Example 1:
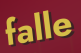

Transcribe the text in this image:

falle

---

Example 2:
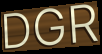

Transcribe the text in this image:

DGR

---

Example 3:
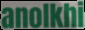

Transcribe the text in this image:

anolkhi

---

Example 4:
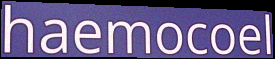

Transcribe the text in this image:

haemocoel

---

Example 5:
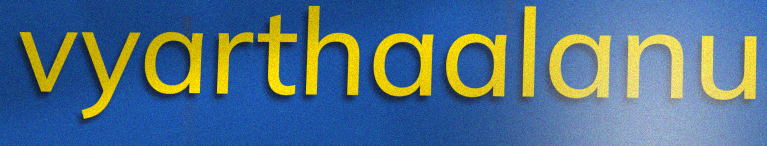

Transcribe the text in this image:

vyarthaalanu